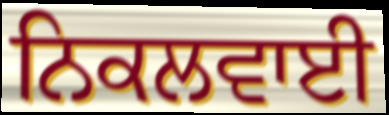
ਨਿਕਲਵਾਈ